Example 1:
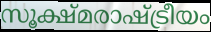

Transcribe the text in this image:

സൂക്ഷ്മരാഷ്ട്രീയം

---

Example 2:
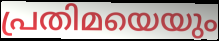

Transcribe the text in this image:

പ്രതിമയെയും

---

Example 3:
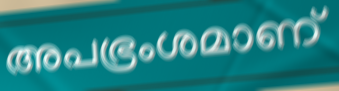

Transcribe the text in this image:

അപഭ്രംശമാണ്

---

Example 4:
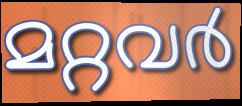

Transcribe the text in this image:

മറ്റവർ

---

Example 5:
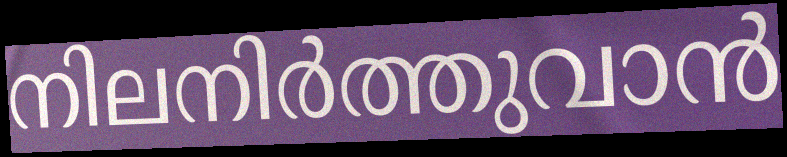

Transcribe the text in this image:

നിലനിർത്തുവാൻ